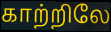
காற்றிலே